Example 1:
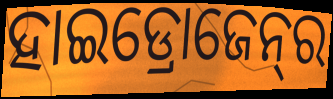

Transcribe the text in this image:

ହାଇଡ୍ରୋଜେନ୍‌ର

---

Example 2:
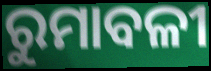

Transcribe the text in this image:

ରୁମାବଳୀ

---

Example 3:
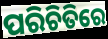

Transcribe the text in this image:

ପରିଚିତିରେ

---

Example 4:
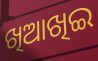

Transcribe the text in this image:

ଖିଆଖିଇ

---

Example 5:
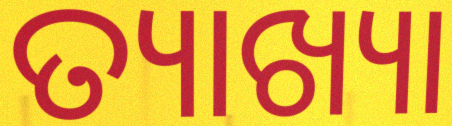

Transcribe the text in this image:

ତ୍ୟାଖ୍ୟା